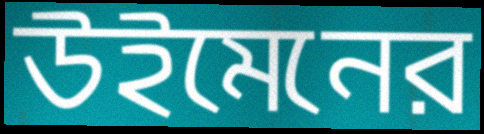
উইমেনের